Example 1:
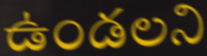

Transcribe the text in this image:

ఉండలని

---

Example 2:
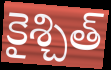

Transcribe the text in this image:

కైశ్చిత్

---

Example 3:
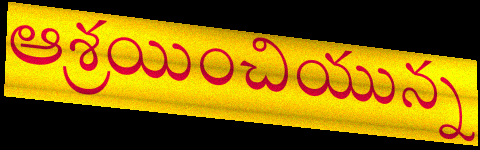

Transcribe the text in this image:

ఆశ్రయించియున్న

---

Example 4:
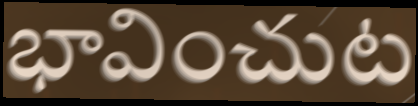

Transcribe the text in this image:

భావించుట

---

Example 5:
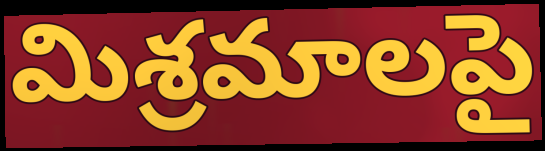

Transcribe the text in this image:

మిశ్రమాలపై